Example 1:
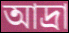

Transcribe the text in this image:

আদ্রা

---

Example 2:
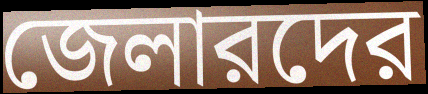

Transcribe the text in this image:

জেলারদের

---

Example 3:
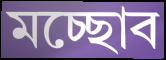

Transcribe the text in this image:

মচ্ছোব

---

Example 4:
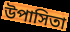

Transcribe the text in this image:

উপাসিতা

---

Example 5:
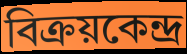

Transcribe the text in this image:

বিক্রয়কেন্দ্র